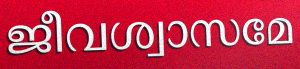
ജീവശ്വാസമേ